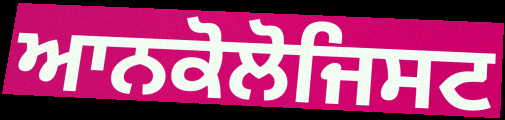
ਆਨਕੋਲੋਜਿਸਟ